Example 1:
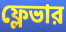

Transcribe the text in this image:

ফ্লেভার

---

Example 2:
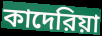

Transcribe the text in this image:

কাদেরিয়া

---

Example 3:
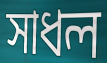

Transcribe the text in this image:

সাধল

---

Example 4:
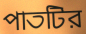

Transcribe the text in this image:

পাতটির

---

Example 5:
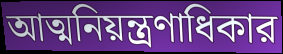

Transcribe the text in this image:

আত্মনিয়ন্ত্রণাধিকার